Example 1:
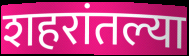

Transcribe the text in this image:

शहरांतल्या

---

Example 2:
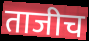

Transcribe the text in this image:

ताजीच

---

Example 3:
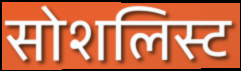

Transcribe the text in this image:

सोशलिस्ट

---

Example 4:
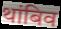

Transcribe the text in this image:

थांबिव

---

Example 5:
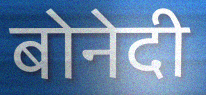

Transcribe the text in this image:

बोनेदी